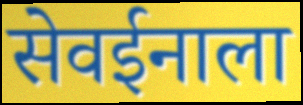
सेवईनाला